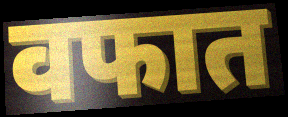
वफात